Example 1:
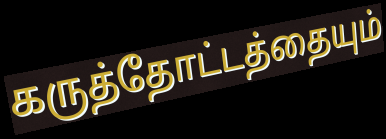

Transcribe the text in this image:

கருத்தோட்டத்தையும்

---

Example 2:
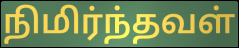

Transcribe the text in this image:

நிமிர்ந்தவள்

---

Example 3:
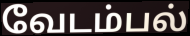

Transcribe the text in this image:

வேடம்பல்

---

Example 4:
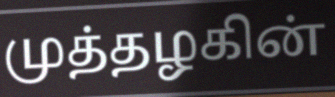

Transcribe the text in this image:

முத்தழகின்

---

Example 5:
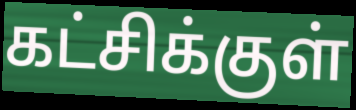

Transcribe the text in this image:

கட்சிக்குள்